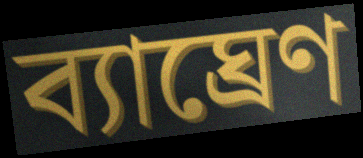
ব্যাঘ্রেণ